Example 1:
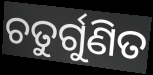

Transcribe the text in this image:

ଚତୁର୍ଗୁଣିତ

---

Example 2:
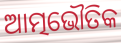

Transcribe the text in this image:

ଆତ୍ମଭୌତିକ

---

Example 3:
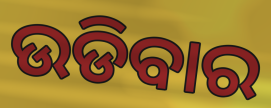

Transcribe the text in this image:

ଉଡିବାର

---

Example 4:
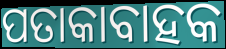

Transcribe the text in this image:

ପତାକାବାହକ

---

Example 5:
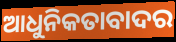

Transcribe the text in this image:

ଆଧୁନିକତାବାଦର